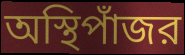
অস্থিপাঁজর